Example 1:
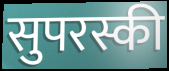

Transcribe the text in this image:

सुपरस्की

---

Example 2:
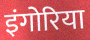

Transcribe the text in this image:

इंगोरिया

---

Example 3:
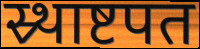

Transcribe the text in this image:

स्र्थाष्टपत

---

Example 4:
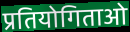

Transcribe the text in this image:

प्रतियोगिताओ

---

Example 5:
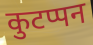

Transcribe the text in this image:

कुटप्पन